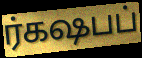
ர்கஷபப்